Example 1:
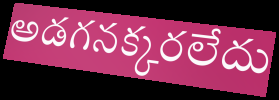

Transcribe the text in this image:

అడగనక్కరలేదు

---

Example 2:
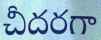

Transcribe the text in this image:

చీదరగా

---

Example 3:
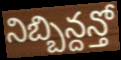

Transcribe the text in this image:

నిబ్బిన్దన్తో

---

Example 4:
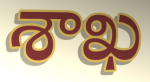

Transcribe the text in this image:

శాఖ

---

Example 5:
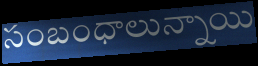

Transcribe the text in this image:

సంబంధాలున్నాయి